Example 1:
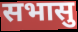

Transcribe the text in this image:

सभासु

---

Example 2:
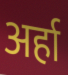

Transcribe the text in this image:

अर्हा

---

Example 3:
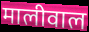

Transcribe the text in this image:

मालीवाल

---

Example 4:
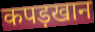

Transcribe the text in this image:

कपड़खान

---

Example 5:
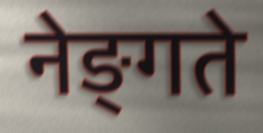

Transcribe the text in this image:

नेङ्गते